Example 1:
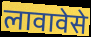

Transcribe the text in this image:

लावावेसे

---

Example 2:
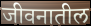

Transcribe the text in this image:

जीवनातील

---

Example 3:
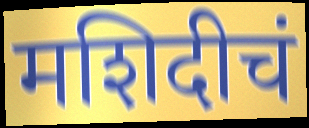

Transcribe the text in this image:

मशिदीचं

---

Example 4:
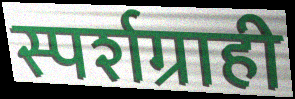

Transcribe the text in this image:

स्पर्शग्राही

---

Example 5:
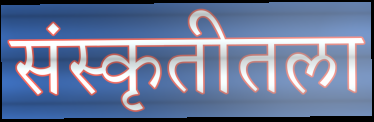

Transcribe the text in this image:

संस्कृतीतला